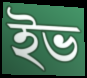
ইভ